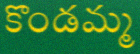
కొండమ్మ